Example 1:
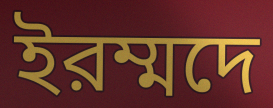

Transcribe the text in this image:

ইরম্মদে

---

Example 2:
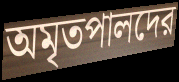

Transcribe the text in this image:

অমৃতপালদের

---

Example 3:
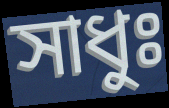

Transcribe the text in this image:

সাধুঃ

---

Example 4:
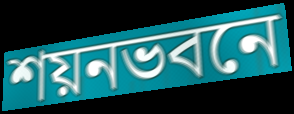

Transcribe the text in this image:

শয়নভবনে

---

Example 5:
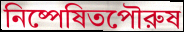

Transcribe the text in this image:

নিষ্পেষিতপৌরুষ